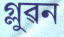
গ্লুৱন